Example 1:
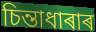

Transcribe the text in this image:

চিন্তাধাৰাৰ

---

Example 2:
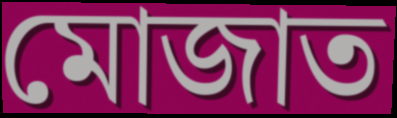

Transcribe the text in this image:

মোজাত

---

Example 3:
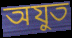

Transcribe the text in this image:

অযুত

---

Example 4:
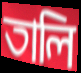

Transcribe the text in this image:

তালি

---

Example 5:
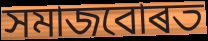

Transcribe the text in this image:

সমাজবোৰত